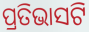
ପ୍ରତିଭାସଟି